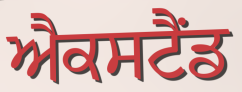
ਐਕਸਟੈਂਡ